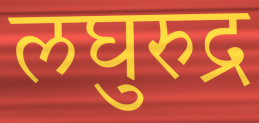
लघुरुद्र